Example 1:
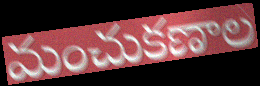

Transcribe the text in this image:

మంచుకణాల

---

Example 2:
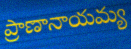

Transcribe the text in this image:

ప్రాణానాయమ్య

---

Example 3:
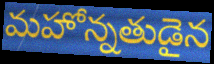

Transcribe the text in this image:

మహోన్నతుడైన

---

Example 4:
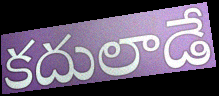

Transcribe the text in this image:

కదులాడే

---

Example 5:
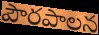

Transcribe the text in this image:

పౌరపాలన